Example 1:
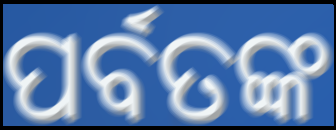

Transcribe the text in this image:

ପର୍ବତଙ୍କ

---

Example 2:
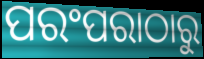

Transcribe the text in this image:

ପରଂପରାଠାରୁ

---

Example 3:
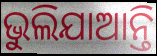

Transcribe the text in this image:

ଭୁଲିଯାଆନ୍ତି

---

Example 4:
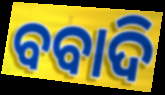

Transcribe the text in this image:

ବବାଦି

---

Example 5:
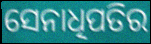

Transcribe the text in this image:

ସେନାଧିପତିର